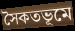
সৈকতভূমে